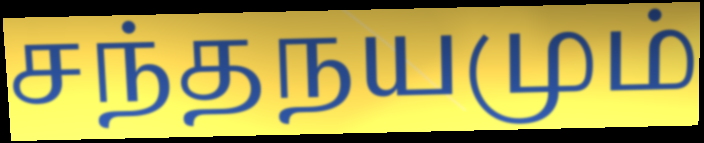
சந்தநயமும்